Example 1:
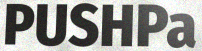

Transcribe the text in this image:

PUSHPa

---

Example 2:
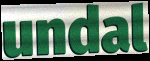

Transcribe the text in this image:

undal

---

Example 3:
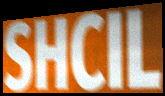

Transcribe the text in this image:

SHCIL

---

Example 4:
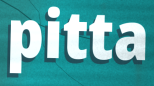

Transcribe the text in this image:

pitta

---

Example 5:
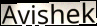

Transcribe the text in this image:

Avishek